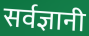
सर्वज्ञानी